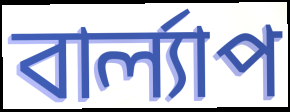
বার্ল্যাপ